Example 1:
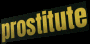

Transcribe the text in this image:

prostitute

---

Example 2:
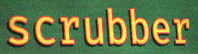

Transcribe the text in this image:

scrubber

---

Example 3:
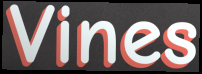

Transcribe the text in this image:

Vines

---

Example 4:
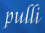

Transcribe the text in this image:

pulli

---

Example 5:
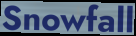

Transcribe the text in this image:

Snowfall